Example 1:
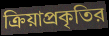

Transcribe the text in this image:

ক্রিয়াপ্রকৃতির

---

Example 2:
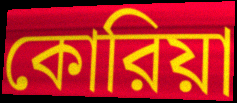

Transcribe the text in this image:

কোরিয়া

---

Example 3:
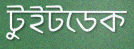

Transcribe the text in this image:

টুইটডেক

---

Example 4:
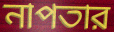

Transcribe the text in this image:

নাপতার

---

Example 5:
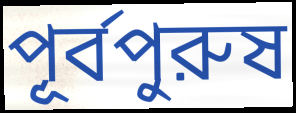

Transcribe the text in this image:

পূর্বপুরুষ